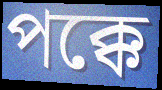
পক্কে